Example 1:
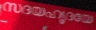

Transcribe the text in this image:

സദയഹൃദയേ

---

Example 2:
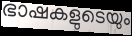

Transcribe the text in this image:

ഭാഷകളുടെയും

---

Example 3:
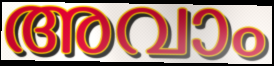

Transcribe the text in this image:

അവാം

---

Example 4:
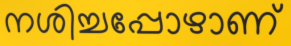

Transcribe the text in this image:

നശിച്ചപ്പോഴാണ്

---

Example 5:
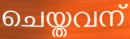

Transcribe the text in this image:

ചെയ്തവന്